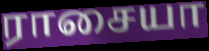
ராசையா